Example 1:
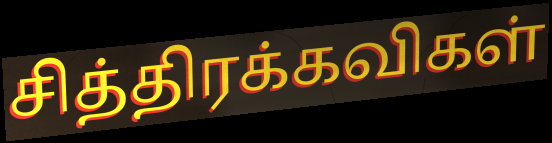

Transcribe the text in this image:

சித்திரக்கவிகள்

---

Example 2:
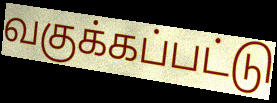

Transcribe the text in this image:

வகுக்கப்பட்டு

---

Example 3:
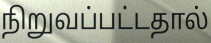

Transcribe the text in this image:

நிறுவப்பட்டதால்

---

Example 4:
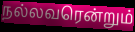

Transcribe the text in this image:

நல்லவரென்றும்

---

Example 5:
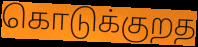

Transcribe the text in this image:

கொடுக்குறத